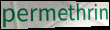
permethrin